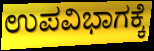
ಉಪವಿಭಾಗಕ್ಕೆ